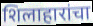
शिलाहारांचा